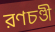
রণচণ্ডী